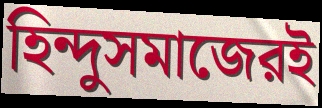
হিন্দুসমাজেরই